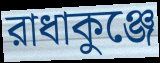
রাধাকুঞ্জে